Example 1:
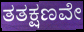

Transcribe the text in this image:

ತತಕ್ಷಣವೇ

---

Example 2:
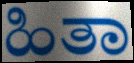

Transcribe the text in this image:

ಹಿತಾ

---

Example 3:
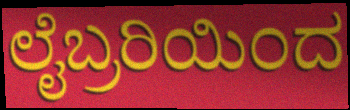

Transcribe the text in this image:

ಲೈಬ್ರರಿಯಿಂದ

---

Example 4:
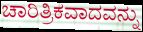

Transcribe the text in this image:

ಚಾರಿತ್ರಿಕವಾದವನ್ನು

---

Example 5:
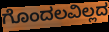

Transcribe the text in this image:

ಗೊಂದಲವಿಲ್ಲದ